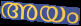
അയം